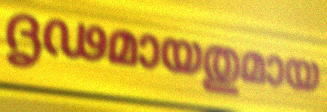
ദൃഢമായതുമായ